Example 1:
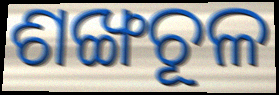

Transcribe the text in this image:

ଶଙ୍ଖଚୂଳ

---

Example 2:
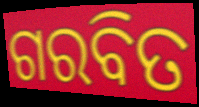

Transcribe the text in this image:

ଗରବିତ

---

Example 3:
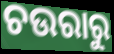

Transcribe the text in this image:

ଚଉରାରୁ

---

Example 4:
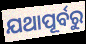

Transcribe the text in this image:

ଯଥାପୂର୍ବରୁ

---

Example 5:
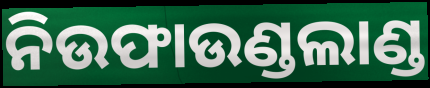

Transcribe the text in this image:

ନିଉଫାଉଣ୍ଡଲାଣ୍ଡ